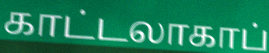
காட்டலாகாப்